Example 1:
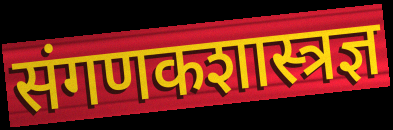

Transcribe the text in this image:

संगणकशास्त्रज्ञ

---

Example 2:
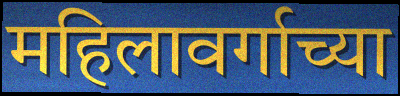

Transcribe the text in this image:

महिलावर्गाच्या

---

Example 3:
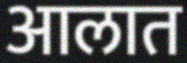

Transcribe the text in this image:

आलात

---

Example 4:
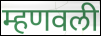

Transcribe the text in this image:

म्हणवली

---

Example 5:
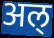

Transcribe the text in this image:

अल्